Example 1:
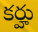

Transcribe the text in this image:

కర్హు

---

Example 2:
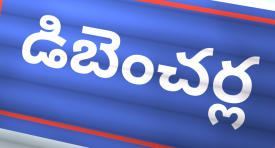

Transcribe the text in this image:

డిబెంచర్ల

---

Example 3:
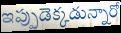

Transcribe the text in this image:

ఇప్పుడెక్కడున్నారో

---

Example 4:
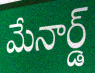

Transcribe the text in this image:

మేనార్డ్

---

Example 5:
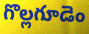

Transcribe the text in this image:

గొల్లగూడెం